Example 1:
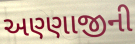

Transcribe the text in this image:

અણ્ણાજીની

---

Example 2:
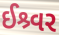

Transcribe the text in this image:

ઈશ્ર્વર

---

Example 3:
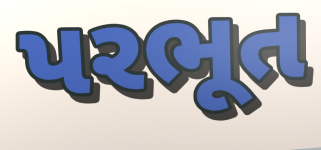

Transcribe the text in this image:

પરભૂત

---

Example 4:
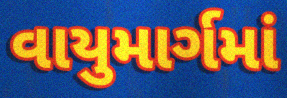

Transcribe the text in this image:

વાયુમાર્ગમાં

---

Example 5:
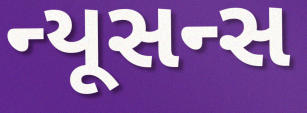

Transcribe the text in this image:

ન્યૂસન્સ